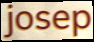
josep